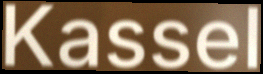
Kassel